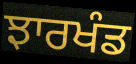
ਝਾਰਖੰਡ